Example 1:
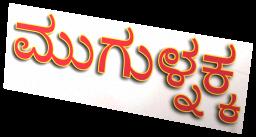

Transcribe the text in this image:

ಮುಗುಳ್ನಕ್ಕ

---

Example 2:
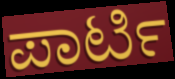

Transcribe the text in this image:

ಪಾರ್ಟಿ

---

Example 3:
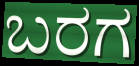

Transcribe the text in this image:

ಬರಗ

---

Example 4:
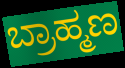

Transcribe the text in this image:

ಬ್ರಾಹ್ಮಣ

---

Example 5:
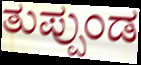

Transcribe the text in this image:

ತುಪ್ಪುಂಡ